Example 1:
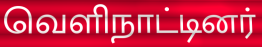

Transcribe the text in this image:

வெளிநாட்டினர்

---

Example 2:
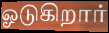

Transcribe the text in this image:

ஓடுகிறார்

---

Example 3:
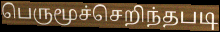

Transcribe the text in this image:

பெருமூச்செறிந்தபடி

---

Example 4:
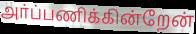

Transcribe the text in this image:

அர்ப்பணிக்கின்றேன்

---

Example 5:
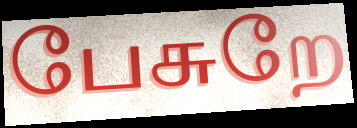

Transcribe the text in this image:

பேசுறே